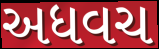
અધવચ